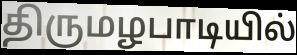
திருமழபாடியில்